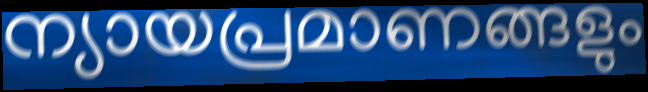
ന്യായപ്രമാണങ്ങളും